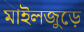
মাইলজুড়ে